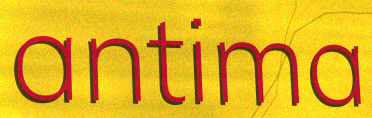
antima